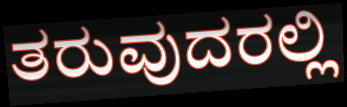
ತರುವುದರಲ್ಲಿ